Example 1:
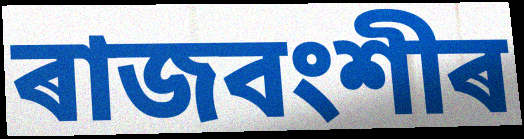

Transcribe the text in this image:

ৰাজবংশীৰ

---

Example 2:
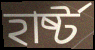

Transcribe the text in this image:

হাৰ্ষ্ট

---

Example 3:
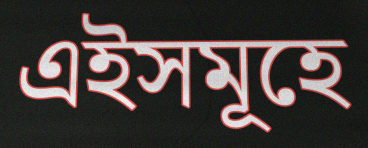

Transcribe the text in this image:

এইসমূহে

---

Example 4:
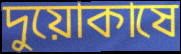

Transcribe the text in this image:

দুয়োকাষে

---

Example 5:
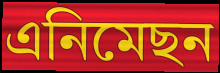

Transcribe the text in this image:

এনিমেছন